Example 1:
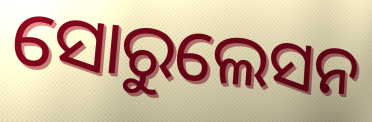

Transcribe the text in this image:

ସୋରୁଲେସନ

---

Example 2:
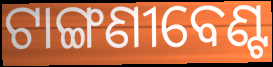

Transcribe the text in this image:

ଟାଙ୍ଗଣୀବେଣ୍ଟ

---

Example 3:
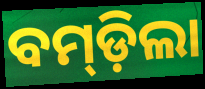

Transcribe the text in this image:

ବମ୍‍ଡ଼ିଲା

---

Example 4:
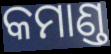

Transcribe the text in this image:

କମାଣ୍ଡ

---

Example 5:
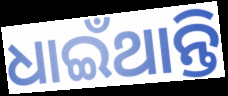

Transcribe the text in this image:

ଧାଇଁଥାନ୍ତି